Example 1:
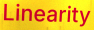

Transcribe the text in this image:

Linearity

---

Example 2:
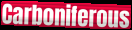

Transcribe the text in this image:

Carboniferous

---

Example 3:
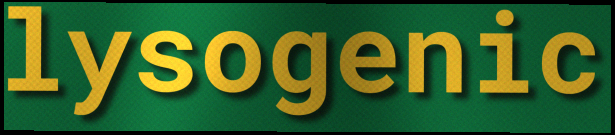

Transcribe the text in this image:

lysogenic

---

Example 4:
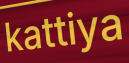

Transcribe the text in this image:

kattiya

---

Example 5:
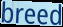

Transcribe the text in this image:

breed